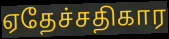
ஏதேச்சதிகார